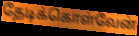
தேடிக்கொள்வேன்